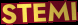
STEMI